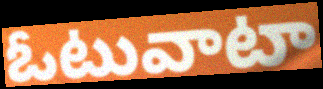
ఓటువాటా